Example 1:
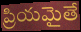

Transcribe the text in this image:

ప్రియమైతే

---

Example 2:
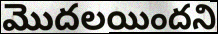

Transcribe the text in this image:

మొదలయిందని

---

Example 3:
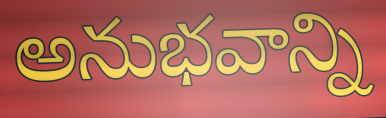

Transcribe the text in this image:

అనుభవాన్ని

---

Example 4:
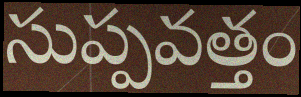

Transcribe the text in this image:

సుప్పవత్తం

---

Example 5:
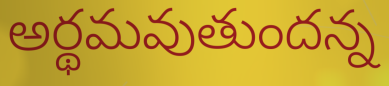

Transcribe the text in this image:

అర్థమవుతుందన్న